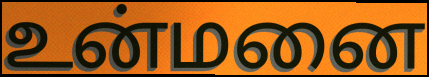
உன்மனை